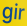
gir